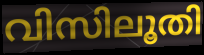
വിസിലൂതി